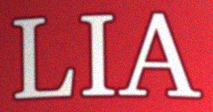
LIA